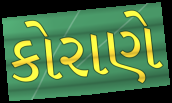
કોરાણે